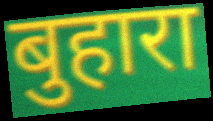
बुहारा